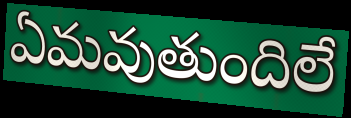
ఏమవుతుందిలే